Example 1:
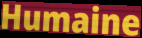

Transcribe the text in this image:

Humaine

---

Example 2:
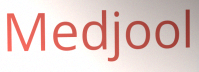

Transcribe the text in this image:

Medjool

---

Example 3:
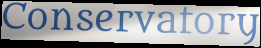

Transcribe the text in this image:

Conservatory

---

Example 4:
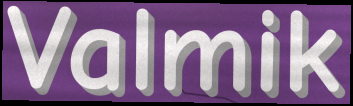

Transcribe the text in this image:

Valmik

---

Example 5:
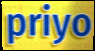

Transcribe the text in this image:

priyo